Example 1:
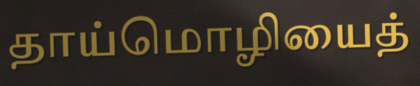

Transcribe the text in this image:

தாய்மொழியைத்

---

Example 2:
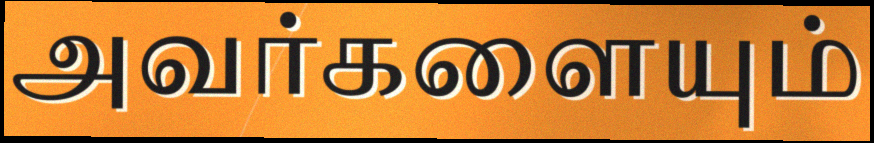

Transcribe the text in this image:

அவர்களையும்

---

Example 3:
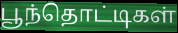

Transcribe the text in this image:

பூந்தொட்டிகள்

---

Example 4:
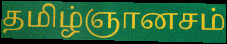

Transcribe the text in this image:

தமிழ்ஞானசம்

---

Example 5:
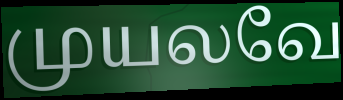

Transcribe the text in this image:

முயலவே